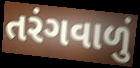
તરંગવાળું